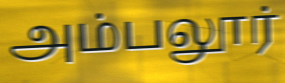
அம்பலூர்